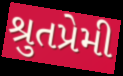
શ્રુતપ્રેમી